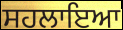
ਸਹਲਾਇਆ